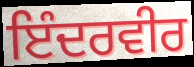
ਇੰਦਰਵੀਰ